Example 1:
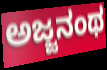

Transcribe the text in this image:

ಅಜ್ಜನಂಥ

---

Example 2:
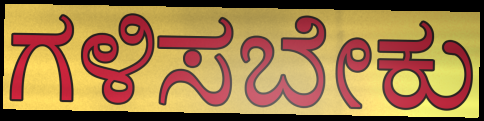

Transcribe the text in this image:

ಗಳಿಸಬೇಕು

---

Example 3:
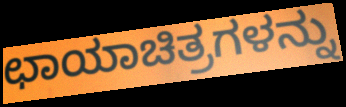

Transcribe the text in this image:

ಛಾಯಾಚಿತ್ರಗಳನ್ನು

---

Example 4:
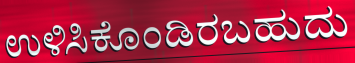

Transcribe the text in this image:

ಉಳಿಸಿಕೊಂಡಿರಬಹುದು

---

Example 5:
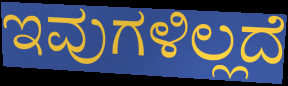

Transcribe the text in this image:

ಇವುಗಳಿಲ್ಲದೆ